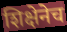
शिक्षेनेच